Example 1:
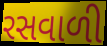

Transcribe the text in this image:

રસવાળી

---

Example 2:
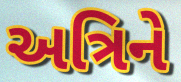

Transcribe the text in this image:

અત્રિને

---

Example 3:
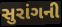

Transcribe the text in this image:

સુરાંગની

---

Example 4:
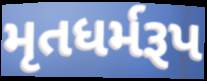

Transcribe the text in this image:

મૃતધર્મરૂપ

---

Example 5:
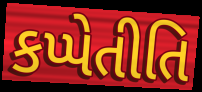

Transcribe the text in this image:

કપ્પેતીતિ